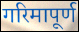
गरिमापूर्ण